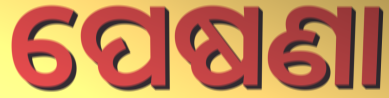
ପେଷଣା